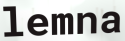
lemna